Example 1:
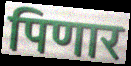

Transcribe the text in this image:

पिणार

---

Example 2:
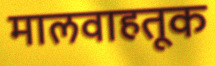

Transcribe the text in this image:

मालवाहतूक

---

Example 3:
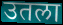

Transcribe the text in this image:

उतला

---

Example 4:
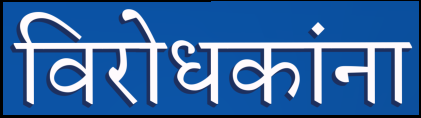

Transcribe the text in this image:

विरोधकांना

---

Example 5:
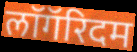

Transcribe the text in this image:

लॉगॅरिदम